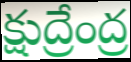
క్షుద్రేంద్ర